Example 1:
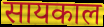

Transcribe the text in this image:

सायकाल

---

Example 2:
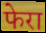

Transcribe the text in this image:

फेरा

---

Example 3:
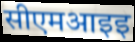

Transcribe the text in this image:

सीएमआइइ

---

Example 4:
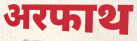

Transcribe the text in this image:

अरफाथ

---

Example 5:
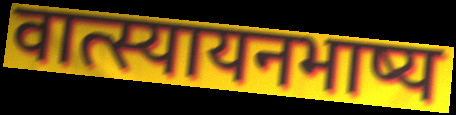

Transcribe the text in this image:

वात्स्यायनभाष्य